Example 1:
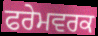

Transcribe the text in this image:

ਫਰੇਮਵਰਕ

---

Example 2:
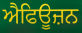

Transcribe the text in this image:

ਐਫਿਊਜ਼ਨ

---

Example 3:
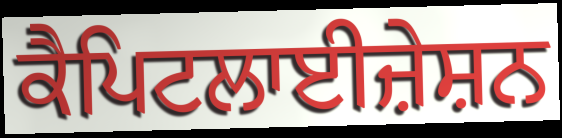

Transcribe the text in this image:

ਕੈਪਿਟਲਾਈਜ਼ੇਸ਼ਨ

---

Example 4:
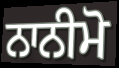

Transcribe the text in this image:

ਨਾਨੀਮੋ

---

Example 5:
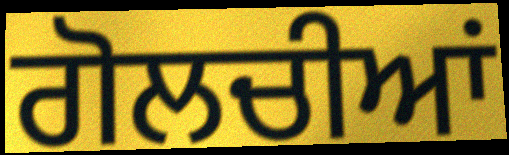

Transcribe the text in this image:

ਗੋਲਚੀਆਂ